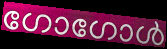
ഗോഗോൾ